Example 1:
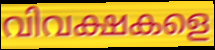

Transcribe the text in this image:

വിവക്ഷകളെ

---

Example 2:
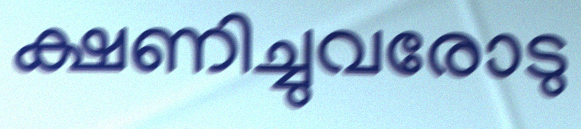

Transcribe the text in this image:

ക്ഷണിച്ചുവരോടു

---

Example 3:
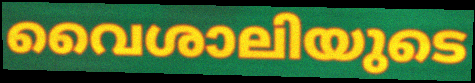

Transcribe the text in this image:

വൈശാലിയുടെ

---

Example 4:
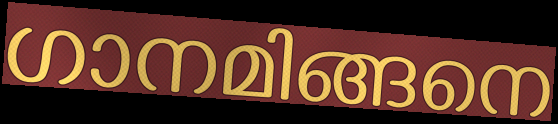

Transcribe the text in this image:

ഗാനമിങ്ങനെ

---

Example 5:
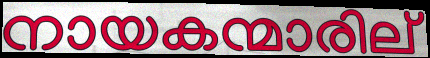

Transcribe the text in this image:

നായകന്മാരില്